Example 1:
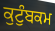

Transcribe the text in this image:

ਕੁਟੁੰਬਕਮ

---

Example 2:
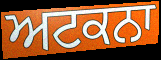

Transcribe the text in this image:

ਅਟਕਨਾ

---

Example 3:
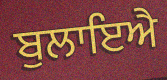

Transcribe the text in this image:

ਬੁਲਾਇਐ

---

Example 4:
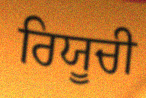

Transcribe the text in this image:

ਰਿਯੂਚੀ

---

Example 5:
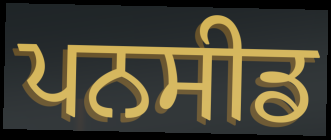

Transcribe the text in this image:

ਪਨਸੀਡ